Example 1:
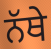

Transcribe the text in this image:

ਨੱਥੇ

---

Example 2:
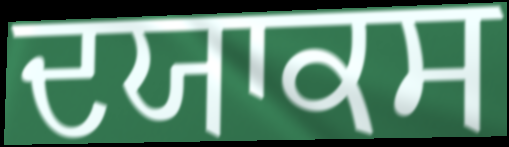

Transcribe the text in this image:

ਦਯਾਕਸ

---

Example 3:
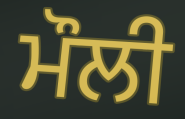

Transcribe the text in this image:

ਮੌਲੀ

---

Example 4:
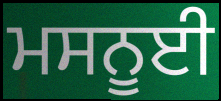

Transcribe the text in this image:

ਮਸਨੂਈ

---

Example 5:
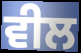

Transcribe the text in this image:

ਵੀਲ